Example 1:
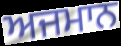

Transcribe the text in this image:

ਅਜਮਾਨ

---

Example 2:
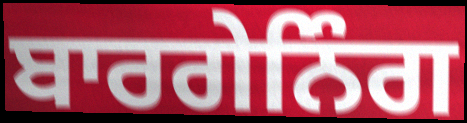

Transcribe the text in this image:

ਬਾਰਗੇਨਿੰਗ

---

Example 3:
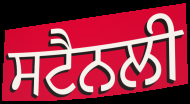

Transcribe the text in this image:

ਸਟੈਨਲੀ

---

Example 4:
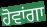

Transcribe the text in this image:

ਹੋਵਾਂਗਾ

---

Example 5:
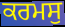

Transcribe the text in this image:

ਕਰਮਸੁ